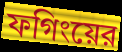
ফগিংয়ের